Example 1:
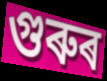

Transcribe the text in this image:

গুৰুৰ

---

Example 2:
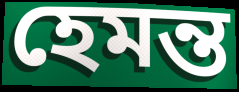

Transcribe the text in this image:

হেমন্ত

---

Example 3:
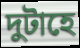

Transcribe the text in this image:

দুটাহে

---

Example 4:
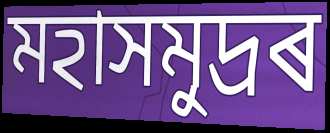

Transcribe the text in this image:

মহাসমুদ্ৰৰ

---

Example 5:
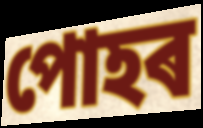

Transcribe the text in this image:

পোহৰ